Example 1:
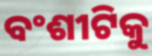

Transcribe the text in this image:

ବଂଶୀଟିକୁ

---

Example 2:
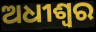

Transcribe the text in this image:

ଅଧୀଶ୍ୱର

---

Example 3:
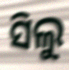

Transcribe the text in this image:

ସିଲୁ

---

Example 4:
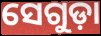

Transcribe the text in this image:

ସେଗୁଡ଼ା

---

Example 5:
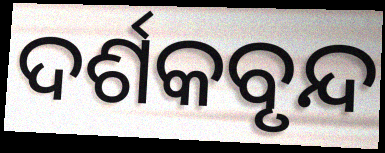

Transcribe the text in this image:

ଦର୍ଶକବୃନ୍ଦ